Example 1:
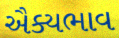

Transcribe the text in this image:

ઐક્યભાવ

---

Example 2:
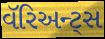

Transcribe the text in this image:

વૅરિઅન્ટ્સ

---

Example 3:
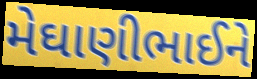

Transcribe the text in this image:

મેઘાણીભાઈને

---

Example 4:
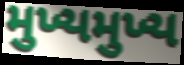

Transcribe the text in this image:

મુખ્યમુખ્ય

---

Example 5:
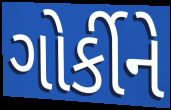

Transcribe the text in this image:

ગોર્કીને